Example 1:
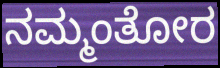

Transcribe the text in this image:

ನಮ್ಮಂತೋರ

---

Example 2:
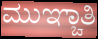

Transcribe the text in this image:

ಮುಞ್ಚಾತಿ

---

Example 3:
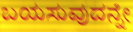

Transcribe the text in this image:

ಬಯಸುವುದನ್ನೇ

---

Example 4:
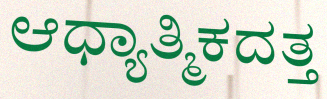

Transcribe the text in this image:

ಆಧ್ಯಾತ್ಮಿಕದತ್ತ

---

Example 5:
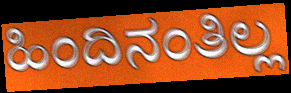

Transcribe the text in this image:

ಹಿಂದಿನಂತಿಲ್ಲ